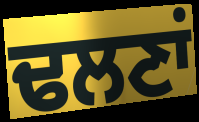
ਢਲਣਾਂ